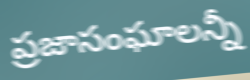
ప్రజాసంఘాలన్నీ